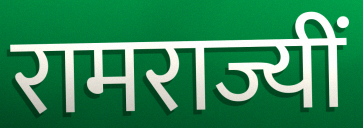
रामराज्यीं